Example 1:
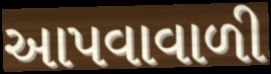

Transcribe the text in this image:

આપવાવાળી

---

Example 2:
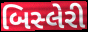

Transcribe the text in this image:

બિસ્લેરી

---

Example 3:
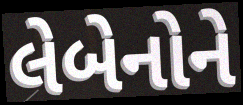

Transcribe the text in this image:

લેબેનોને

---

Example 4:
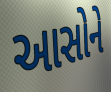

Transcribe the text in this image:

આસોને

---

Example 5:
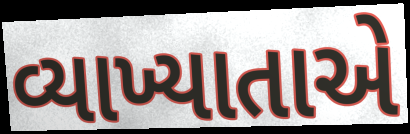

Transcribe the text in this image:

વ્યાખ્યાતાએ